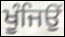
ਖੂੰਜਿਉਂ